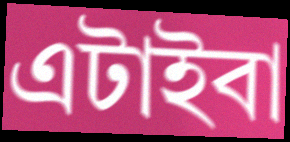
এটাইবা